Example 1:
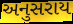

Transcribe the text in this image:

અનુસરાય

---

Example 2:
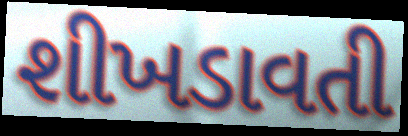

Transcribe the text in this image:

શીખડાવતી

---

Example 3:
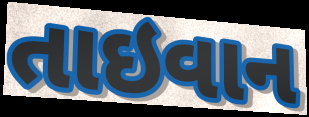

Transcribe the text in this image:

તાઇવાન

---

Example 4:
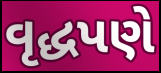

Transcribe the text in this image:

વૃદ્ધપણે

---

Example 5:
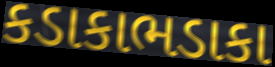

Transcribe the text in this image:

કડાકાભડાકા